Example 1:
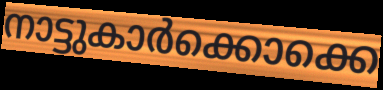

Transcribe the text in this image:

നാട്ടുകാർക്കൊക്കെ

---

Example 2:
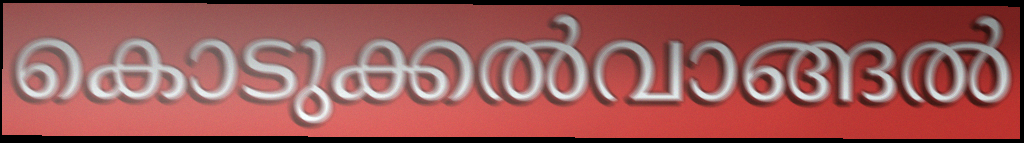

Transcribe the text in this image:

കൊടുക്കൽവാങ്ങൽ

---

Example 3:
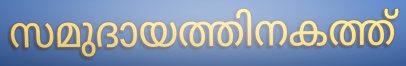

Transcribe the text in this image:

സമുദായത്തിനകത്ത്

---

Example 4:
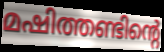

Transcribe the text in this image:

മഷിത്തണ്ടിന്റെ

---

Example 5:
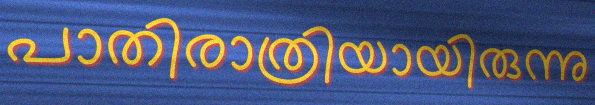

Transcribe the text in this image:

പാതിരാത്രിയായിരുന്നു